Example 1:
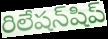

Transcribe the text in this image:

రిలేషన్‌షిప్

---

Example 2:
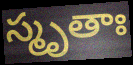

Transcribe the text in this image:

స్మృతాః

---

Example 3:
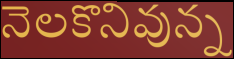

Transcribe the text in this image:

నెలకొనివున్న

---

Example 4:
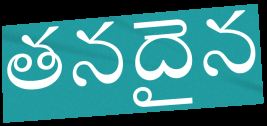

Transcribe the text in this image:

తనదైన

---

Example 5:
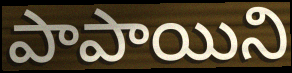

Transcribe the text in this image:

పాపాయిని